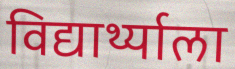
विद्यार्थ्याला